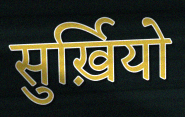
सुर्ख़ियो